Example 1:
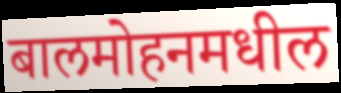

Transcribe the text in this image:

बालमोहनमधील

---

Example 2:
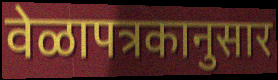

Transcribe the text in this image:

वेळापत्रकानुसार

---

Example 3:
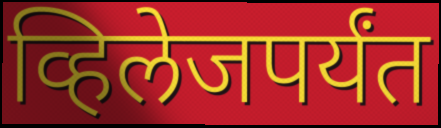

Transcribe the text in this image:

व्हिलेजपर्यंत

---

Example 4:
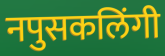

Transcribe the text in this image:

नपुसकलिंगी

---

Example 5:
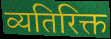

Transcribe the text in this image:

व्यतिरिक्त